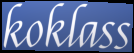
koklass